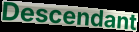
Descendant